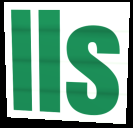
Ils